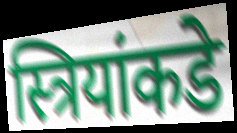
स्त्रियांकडे